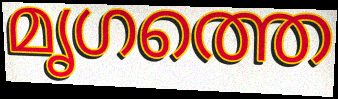
മൃഗത്തെ